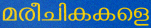
മരീചികകളെ